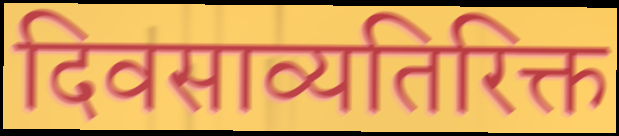
दिवसाव्यतिरिक्त